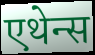
एथेन्स